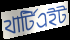
থার্টিএইট